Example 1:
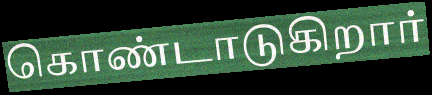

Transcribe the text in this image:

கொண்டாடுகிறார்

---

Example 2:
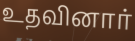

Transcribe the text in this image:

உதவினார்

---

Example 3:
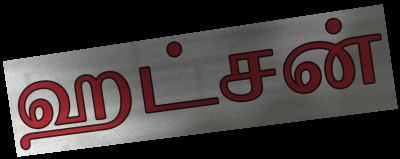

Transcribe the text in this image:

ஹட்சன்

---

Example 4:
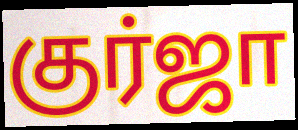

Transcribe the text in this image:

குர்ஜா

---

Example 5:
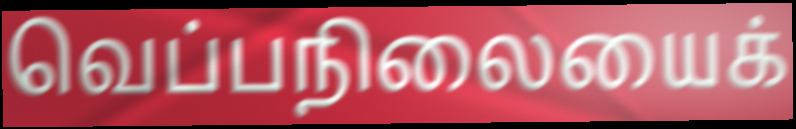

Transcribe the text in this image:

வெப்பநிலையைக்